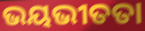
ଭୟଭୀତତା